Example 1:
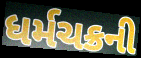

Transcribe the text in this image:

ધર્મચક્રની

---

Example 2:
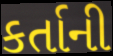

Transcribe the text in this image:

કર્તાની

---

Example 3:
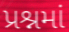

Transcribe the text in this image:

પ્રશ્નમાં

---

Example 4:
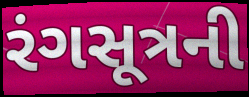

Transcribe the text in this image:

રંગસૂત્રની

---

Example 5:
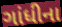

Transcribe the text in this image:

ગાંધીના